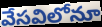
వేసవిలోనూ